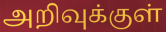
அறிவுக்குள்